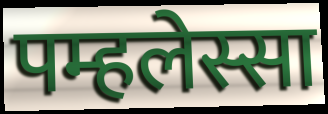
पम्हलेस्सा